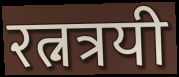
रत्नत्रयी